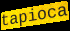
tapioca